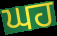
ਘਹ